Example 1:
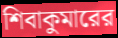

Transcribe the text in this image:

শিবাকুমারের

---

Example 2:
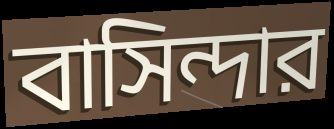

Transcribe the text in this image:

বাসিন্দার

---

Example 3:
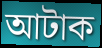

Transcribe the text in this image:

আটাক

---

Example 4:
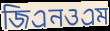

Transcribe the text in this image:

জিএনওএম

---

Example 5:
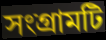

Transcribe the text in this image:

সংগ্রামটি